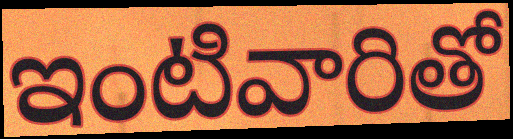
ఇంటివారితో